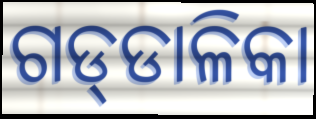
ଗଡ୍‍ଡାଳିକା